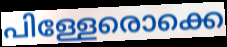
പിള്ളേരൊക്കെ